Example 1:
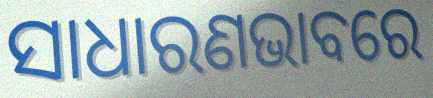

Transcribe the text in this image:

ସାଧାରଣଭାବରେ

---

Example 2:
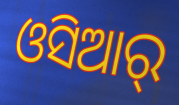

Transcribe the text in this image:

ଓସିଆର୍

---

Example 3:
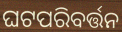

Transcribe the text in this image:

ଘଟପରିବର୍ତ୍ତନ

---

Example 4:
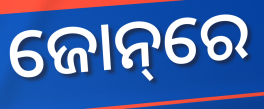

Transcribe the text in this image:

ଜୋନ୍‌ରେ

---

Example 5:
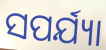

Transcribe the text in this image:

ସପର୍ଯ୍ୟା